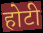
होटी